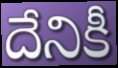
దేనికీ